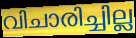
വിചാരിച്ചില്ല